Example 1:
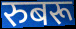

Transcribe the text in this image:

रुबरू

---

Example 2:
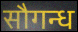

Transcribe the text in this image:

सौगन्ध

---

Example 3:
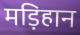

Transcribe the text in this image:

मड़िहान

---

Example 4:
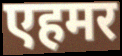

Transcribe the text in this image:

एहमर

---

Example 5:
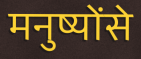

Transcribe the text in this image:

मनुष्योंसे